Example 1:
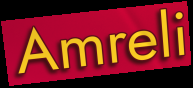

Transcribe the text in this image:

Amreli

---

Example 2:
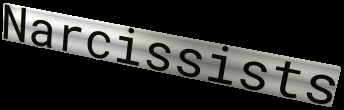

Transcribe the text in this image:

Narcissists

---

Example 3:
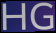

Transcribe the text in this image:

HG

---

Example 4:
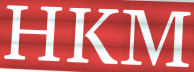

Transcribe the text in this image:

HKM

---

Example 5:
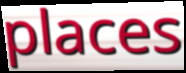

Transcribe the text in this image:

places